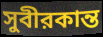
সুবীরকান্ত